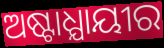
ଅଷ୍ଟାଧ୍ଯାୟୀର